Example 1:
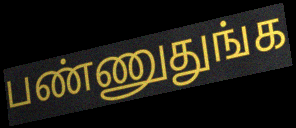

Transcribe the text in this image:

பண்ணுதுங்க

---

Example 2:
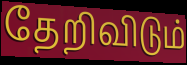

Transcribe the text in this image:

தேறிவிடும்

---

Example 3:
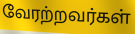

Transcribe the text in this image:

வேரற்றவர்கள்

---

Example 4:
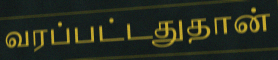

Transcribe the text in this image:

வரப்பட்டதுதான்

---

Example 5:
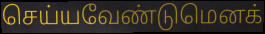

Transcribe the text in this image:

செய்யவேண்டுமெனக்